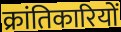
क्रांतिकारियों